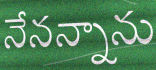
నేనన్నాను